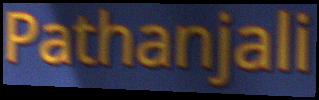
Pathanjali